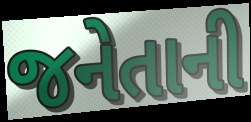
જનેતાની